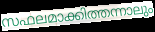
സഫലമാക്കിത്തന്നാലും